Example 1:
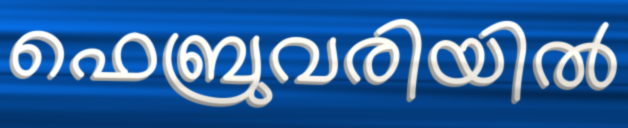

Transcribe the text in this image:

ഫെബ്രുവരിയിൽ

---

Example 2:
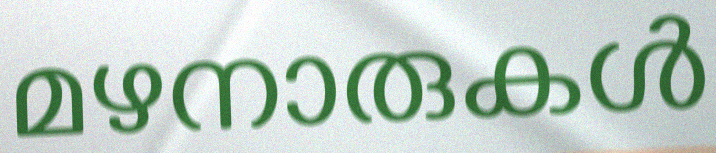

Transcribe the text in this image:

മഴനാരുകൾ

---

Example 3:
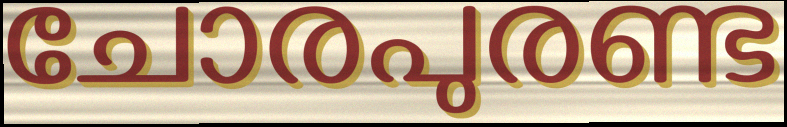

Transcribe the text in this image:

ചോരപുരണ്ട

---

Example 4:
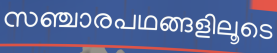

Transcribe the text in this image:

സഞ്ചാരപഥങ്ങളിലൂടെ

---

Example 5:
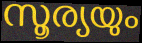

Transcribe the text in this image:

സൂര്യയും